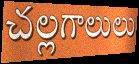
చల్లగాలులు